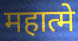
महात्मे